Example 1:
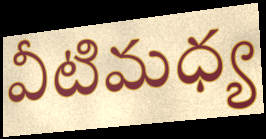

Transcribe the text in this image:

వీటిమధ్య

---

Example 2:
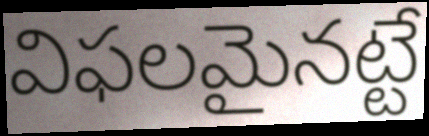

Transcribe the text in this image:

విఫలమైనట్టే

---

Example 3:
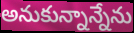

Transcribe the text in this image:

అనుకున్నాన్నేను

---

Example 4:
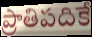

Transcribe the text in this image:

ప్రాతిపదికే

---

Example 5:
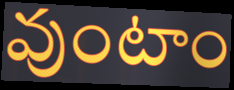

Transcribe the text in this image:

వుంటాం